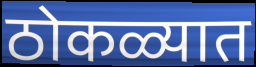
ठोकळ्यात